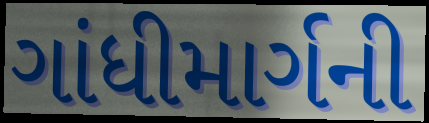
ગાંધીમાર્ગની